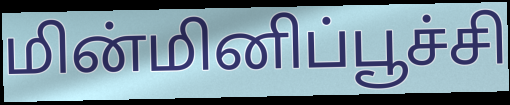
மின்மினிப்பூச்சி